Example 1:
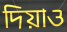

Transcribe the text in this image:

দিয়াও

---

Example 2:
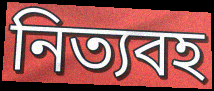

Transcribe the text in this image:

নিত্যবহ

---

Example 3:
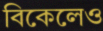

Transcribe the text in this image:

বিকেলেও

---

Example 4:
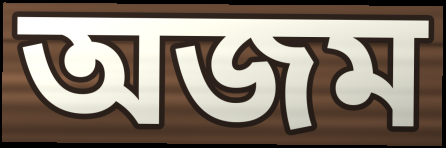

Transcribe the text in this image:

অজম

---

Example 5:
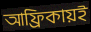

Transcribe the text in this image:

আফ্রিকায়ই